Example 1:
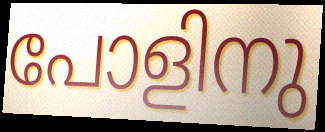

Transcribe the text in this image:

പോളിനു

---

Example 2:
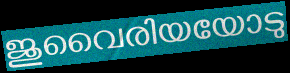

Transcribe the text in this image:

ജുവൈരിയയോടു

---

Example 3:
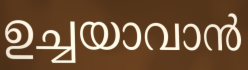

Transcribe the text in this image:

ഉച്ചയാവാൻ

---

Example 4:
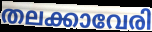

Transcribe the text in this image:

തലക്കാവേരി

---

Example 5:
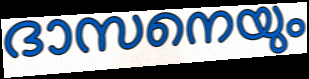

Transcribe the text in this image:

ദാസനെയും